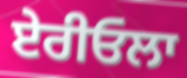
ਏਰੀਓਲਾ